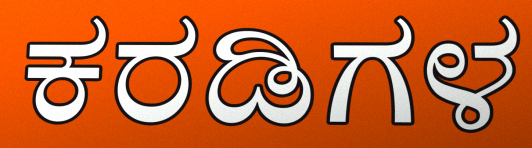
ಕರಡಿಗಳ